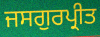
ਜਸਗੁਰਪ੍ਰੀਤ